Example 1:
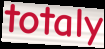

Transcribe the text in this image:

totaly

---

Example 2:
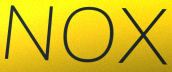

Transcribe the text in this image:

NOX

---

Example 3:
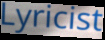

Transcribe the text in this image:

Lyricist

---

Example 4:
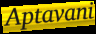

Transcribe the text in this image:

Aptavani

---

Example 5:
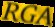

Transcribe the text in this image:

RGA